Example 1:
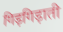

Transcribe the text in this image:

गिड़गिड़ाती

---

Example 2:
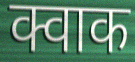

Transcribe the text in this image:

क्वाक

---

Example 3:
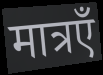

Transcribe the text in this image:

मात्रएँ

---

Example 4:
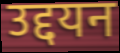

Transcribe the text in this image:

उद्दयन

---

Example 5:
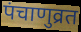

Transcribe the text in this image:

पंचाणुव्रत